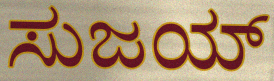
ಸುಜಯ್